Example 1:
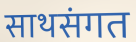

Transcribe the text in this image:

साथसंगत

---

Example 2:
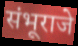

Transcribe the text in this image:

संभूराजे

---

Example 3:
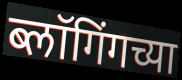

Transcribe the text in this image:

ब्लॉगिंगच्या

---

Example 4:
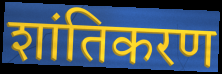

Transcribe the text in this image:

शांतिकरण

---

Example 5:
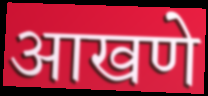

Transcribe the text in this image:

आखणे